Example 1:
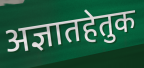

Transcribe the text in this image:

अज्ञातहेतुक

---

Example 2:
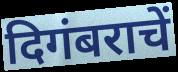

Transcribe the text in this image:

दिगंबराचें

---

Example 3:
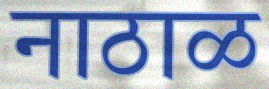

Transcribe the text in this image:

नाठाळ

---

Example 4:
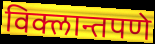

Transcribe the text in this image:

विक्लान्तपणे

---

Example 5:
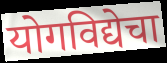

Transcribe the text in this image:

योगविद्येचा